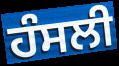
ਹੰਸਲੀ